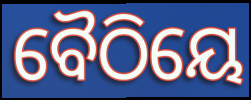
ବୈଠିୟେ